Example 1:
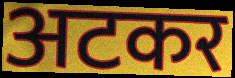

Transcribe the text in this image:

अटकर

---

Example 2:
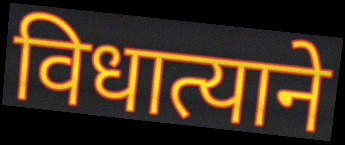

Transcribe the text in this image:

विधात्याने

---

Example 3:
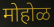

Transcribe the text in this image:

मोहोळ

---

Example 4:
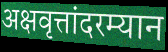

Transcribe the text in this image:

अक्षवृत्तांदरम्यान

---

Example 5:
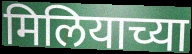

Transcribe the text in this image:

मिलियाच्या